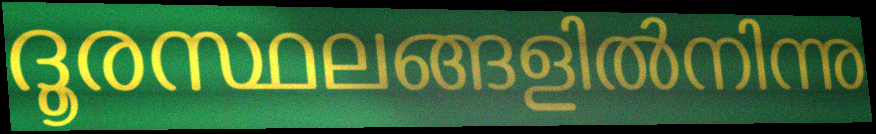
ദൂരസ്ഥലങ്ങളിൽനിന്നു